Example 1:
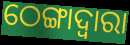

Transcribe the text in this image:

ଠେଙ୍ଗାଦ୍ୱାରା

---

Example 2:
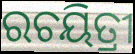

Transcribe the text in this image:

ରଚୟିତ୍ରୀ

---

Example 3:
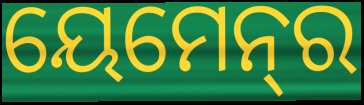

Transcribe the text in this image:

ୟେମେନ୍‌ର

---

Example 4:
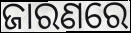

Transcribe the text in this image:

ଜାରଣରେ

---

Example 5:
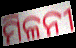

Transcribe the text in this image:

ମିଳନୀ